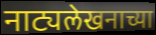
नाट्यलेखनाच्या